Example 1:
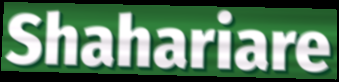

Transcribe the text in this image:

Shahariare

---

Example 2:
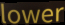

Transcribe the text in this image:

lower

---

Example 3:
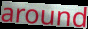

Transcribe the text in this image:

around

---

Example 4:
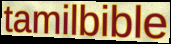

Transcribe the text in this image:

tamilbible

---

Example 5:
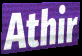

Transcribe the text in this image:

Athir